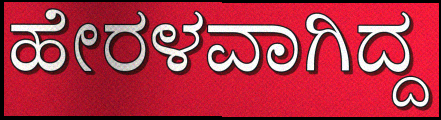
ಹೇರಳವಾಗಿದ್ದ